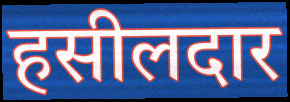
हसीलदार